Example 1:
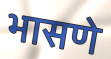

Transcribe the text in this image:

भासणे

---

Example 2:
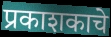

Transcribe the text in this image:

प्रकाशकाचे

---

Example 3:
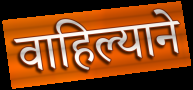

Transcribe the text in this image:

वाहिल्याने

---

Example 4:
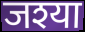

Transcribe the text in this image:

जश्या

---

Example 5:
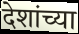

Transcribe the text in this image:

देशांच्या